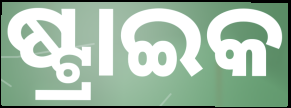
ଷ୍ଟ୍ରାଇକ